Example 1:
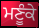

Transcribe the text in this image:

ਮਣੂੰਕੇ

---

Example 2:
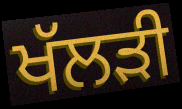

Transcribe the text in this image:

ਖੱਲੜੀ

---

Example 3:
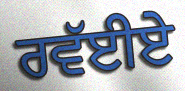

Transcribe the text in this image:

ਰਵੱਈਏ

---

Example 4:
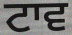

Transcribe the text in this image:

ਟਾਵ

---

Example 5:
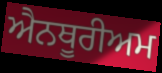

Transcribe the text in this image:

ਐਨਥੂਰੀਅਮ